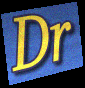
Dr